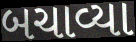
બચાવ્યા